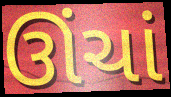
ઊંચાં